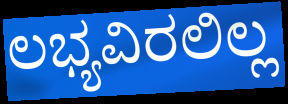
ಲಭ್ಯವಿರಲಿಲ್ಲ